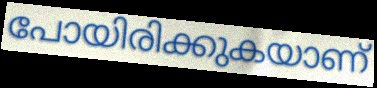
പോയിരിക്കുകയാണ്